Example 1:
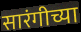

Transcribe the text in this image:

सारंगीच्या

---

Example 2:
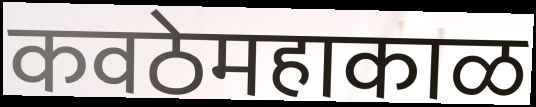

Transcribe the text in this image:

कवठेमहाकाळ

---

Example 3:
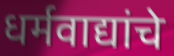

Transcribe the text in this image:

धर्मवाद्यांचे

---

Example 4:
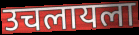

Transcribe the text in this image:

उचलायला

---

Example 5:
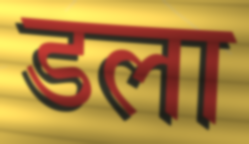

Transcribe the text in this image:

डला